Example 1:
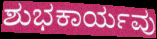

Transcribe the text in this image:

ಶುಭಕಾರ್ಯವು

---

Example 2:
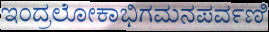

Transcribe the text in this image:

ಇಂದ್ರಲೋಕಾಭಿಗಮನಪರ್ವಣಿ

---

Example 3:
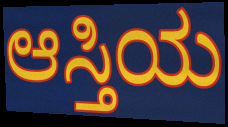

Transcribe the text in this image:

ಆಸ್ತಿಯ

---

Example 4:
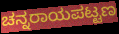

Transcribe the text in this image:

ಚನ್ನರಾಯಪಟ್ಟಣ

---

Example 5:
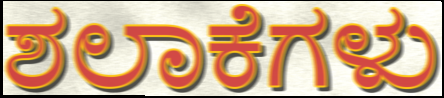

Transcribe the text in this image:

ಶಲಾಕೆಗಳು